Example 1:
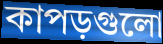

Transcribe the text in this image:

কাপড়গুলো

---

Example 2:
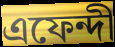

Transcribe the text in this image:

এফেন্দী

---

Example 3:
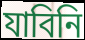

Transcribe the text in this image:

যাবিনি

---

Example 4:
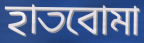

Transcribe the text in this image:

হাতবোমা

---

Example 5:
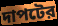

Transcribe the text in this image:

দাপটের